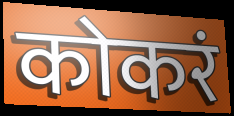
कोकरं